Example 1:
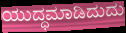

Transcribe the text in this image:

ಯುದ್ಧಮಾಡಿದುದು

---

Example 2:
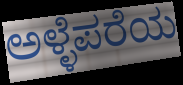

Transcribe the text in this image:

ಅಳ್ಳೆಪರೆಯ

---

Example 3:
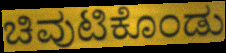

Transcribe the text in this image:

ಚಿವುಟಿಕೊಂಡು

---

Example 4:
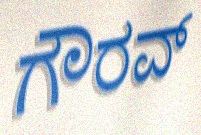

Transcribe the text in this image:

ಗೌರವ್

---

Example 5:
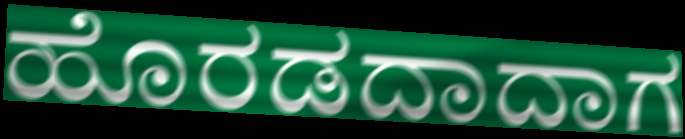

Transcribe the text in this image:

ಹೊರಡದಾದಾಗ